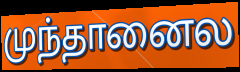
முந்தானைல